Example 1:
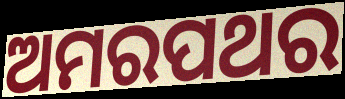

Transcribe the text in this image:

ଅମରପଥର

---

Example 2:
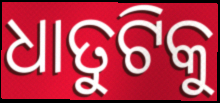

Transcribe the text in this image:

ଧାତୁଟିକୁ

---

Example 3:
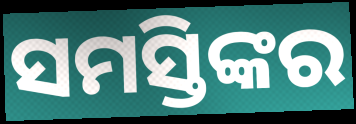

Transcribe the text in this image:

ସମସ୍ତିଙ୍କର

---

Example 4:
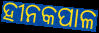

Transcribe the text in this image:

ହୀନକପାଳ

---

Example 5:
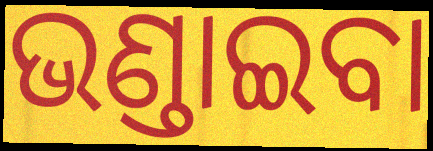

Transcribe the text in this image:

ଭଣ୍ଡାଇବା